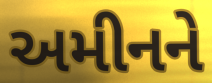
અમીનને